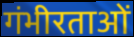
गंभीरताओं